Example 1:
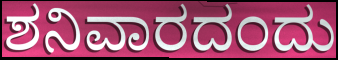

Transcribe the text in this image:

ಶನಿವಾರದಂದು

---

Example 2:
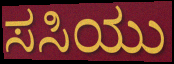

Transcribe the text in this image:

ಸಸಿಯು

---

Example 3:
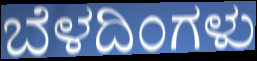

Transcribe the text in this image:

ಬೆಳದಿಂಗಳು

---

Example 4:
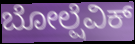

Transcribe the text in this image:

ಬೋಲ್ಷೆವಿಕ್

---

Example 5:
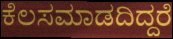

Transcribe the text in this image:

ಕೆಲಸಮಾಡದಿದ್ದರೆ